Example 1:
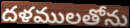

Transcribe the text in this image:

దళములతోను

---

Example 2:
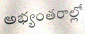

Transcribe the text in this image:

అభ్యంతరాల్లో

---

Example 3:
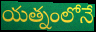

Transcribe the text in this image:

యత్నంలోనే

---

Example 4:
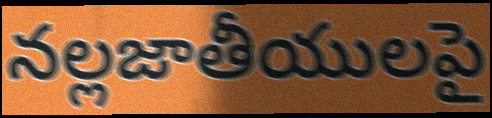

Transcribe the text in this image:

నల్లజాతీయులపై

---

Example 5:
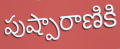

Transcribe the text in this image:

పుష్పారాణికి